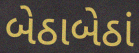
બેઠાબેઠાં